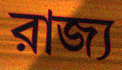
রাজ্য